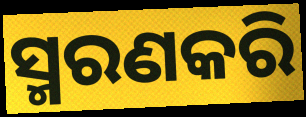
ସ୍ମରଣକରି